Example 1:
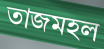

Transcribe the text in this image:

তাজমহল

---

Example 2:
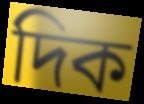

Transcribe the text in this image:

দিক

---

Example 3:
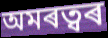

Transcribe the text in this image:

অমৰত্বৰ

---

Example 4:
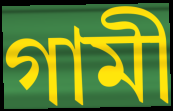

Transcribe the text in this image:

গামী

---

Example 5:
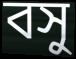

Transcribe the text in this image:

বসু